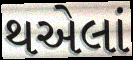
થએલાં